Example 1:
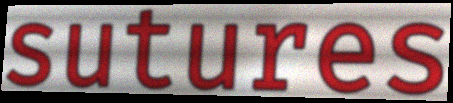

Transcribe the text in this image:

sutures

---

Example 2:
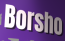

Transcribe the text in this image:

Borsho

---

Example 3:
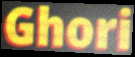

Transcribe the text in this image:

Ghori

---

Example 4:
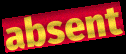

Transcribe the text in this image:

absent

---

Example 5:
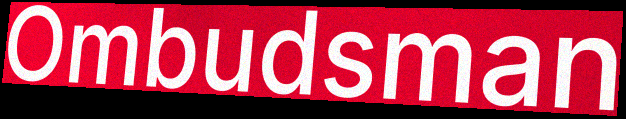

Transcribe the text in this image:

Ombudsman